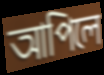
আপিলে